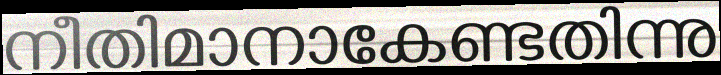
നീതിമാനാകേണ്ടതിന്നു